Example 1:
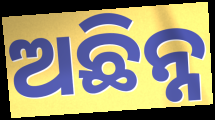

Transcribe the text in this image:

ଅଛିନ୍ନ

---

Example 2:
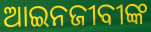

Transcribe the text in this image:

ଆଇନଜୀବୀଙ୍କ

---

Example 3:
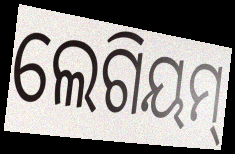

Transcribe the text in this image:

ଲେଗିୟମ୍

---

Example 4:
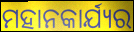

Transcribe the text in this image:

ମହାନକାର୍ଯ୍ୟର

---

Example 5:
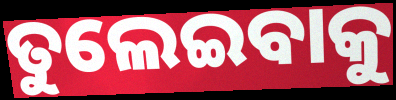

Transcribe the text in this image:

ତୁଲେଇବାକୁ